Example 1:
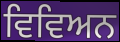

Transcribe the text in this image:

ਵਿਵਿਅਨ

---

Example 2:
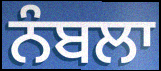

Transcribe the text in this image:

ਨੰਬਲਾ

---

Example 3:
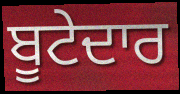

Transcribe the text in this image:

ਬੂਟੇਦਾਰ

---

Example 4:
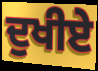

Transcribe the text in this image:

ਦੁਖੀਏ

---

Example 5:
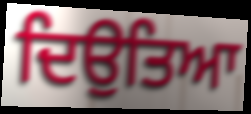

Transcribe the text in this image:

ਦਿਉਤਿਆ